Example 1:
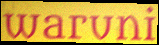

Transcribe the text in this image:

waruni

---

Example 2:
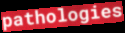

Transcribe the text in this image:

pathologies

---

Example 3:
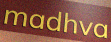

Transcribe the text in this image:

madhva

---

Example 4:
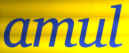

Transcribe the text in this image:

amul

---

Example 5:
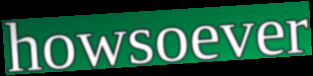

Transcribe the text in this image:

howsoever